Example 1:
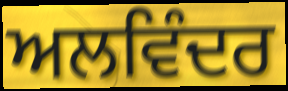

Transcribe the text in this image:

ਅਲਵਿੰਦਰ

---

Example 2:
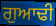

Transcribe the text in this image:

ਗੁਆਢੀ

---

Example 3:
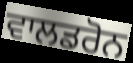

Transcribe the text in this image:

ਵਾਲਡਰੋਨ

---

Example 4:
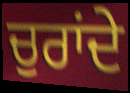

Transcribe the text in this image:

ਚੁਰਾਂਦੇ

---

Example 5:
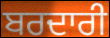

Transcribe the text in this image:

ਬਰਦਾਰੀ